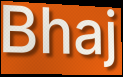
Bhaj